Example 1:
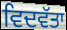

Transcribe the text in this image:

ਵਿਦਵੱਤਾ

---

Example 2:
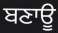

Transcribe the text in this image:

ਬਣਾਊ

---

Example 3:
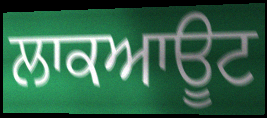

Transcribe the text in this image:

ਲਾਕਆਊਟ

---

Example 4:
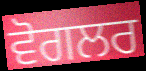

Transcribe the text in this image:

ਵੋਗਲਰ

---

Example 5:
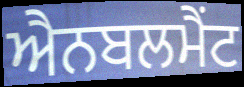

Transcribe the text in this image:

ਐਨਬਲਮੈਂਟ